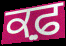
ਕ਼ਫ਼